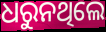
ଧରୁନଥିଲେ